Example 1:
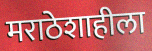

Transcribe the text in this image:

मराठेशाहीला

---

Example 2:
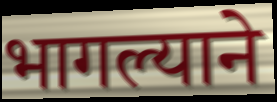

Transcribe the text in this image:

भागल्याने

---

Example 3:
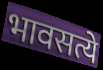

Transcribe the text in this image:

भावसत्ये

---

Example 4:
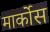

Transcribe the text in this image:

मार्कोस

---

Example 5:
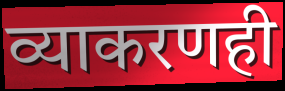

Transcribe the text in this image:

व्याकरणही